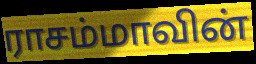
ராசம்மாவின்